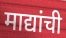
माद्यांची